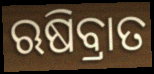
ଋଷିବ୍ରାତ